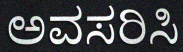
ಅವಸರಿಸಿ